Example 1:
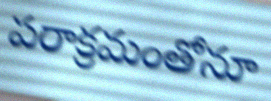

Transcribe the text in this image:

పరాక్రమంతోనూ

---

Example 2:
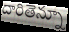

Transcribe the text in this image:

దారితెన్నూ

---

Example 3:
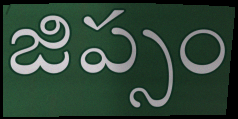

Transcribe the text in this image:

జిప్సం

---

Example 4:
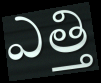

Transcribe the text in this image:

ఎత్తి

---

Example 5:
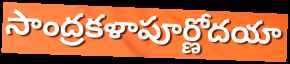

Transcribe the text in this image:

సాంద్రకళాపూర్ణోదయా